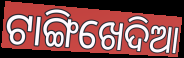
ଟାଙ୍ଗିଖେଦିଆ